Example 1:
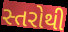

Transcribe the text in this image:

સ્તરોથી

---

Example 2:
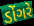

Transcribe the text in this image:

ડોંગરે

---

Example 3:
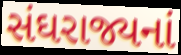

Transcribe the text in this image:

સંઘરાજ્યનાં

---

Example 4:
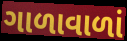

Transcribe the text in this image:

ગાળાવાળાં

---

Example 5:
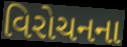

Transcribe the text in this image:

વિરોચનના